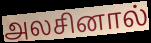
அலசினால்